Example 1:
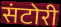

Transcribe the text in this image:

संटोरी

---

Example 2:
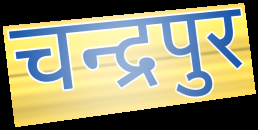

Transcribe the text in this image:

चन्द्रपुर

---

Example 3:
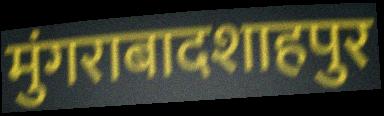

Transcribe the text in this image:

मुंगराबादशाहपुर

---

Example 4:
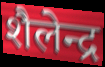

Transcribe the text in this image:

शैलेन्द्र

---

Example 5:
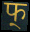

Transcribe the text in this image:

फ्